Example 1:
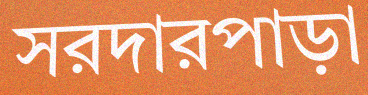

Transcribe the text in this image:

সরদারপাড়া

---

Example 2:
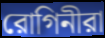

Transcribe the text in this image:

রোগিনীরা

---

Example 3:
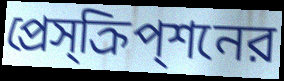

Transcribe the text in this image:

প্রেস্‌ক্রিপ্‌শনের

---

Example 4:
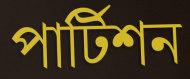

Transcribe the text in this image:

পার্টিশন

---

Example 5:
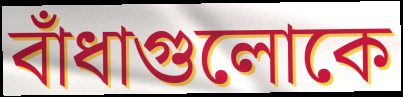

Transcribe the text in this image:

বাঁধাগুলোকে